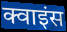
क्वाइंस